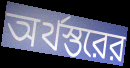
অর্থস্তরের